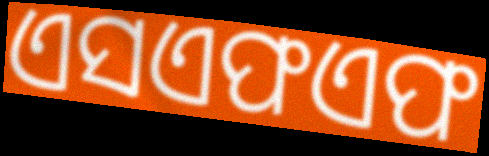
ଏସଏଫଏଫ